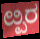
ೞ್ಪರ